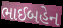
ભાઈબહેન